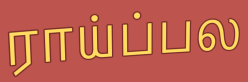
ராய்ப்பல